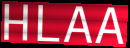
HLAA